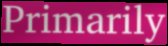
Primarily